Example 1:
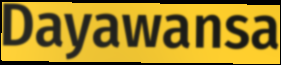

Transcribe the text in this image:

Dayawansa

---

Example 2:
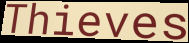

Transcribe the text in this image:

Thieves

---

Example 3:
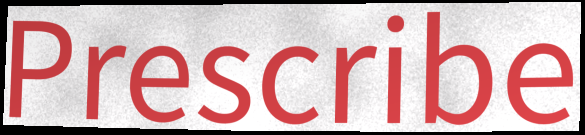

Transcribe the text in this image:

Prescribe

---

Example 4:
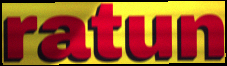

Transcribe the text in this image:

ratun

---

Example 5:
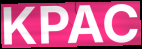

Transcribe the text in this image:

KPAC